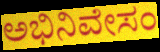
ಅಭಿನಿವೇಸಂ